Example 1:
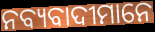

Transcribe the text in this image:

ନବ୍ୟବାଦୀମାନେ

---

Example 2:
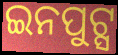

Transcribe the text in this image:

ଇନପୁଟ୍ସ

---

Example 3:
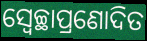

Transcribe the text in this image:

ସ୍ୱେଚ୍ଛାପ୍ରଣୋଦିତ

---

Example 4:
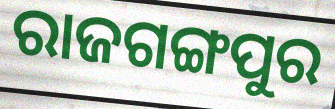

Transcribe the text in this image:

ରାଜଗଙ୍ଗପୁର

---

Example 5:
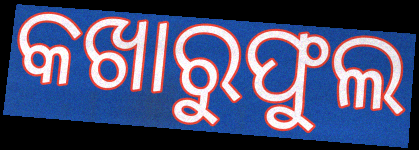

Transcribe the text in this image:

କଖାରୁଫୁଲ